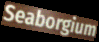
Seaborgium